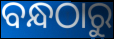
ବନ୍ଧଠାରୁ